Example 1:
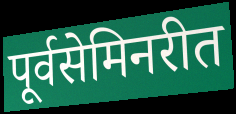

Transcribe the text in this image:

पूर्वसेमिनरीत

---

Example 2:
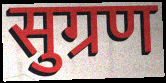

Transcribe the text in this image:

सुग्रण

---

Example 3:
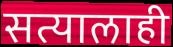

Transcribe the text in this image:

सत्यालाही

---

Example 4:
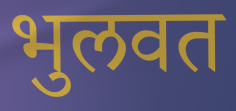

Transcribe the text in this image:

भुलवत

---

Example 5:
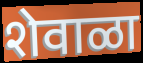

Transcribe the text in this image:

शेवाळा